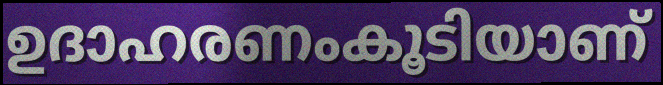
ഉദാഹരണംകൂടിയാണ്